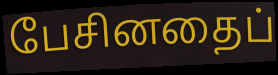
பேசினதைப்